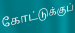
கோட்டுக்குப்